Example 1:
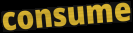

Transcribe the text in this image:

consume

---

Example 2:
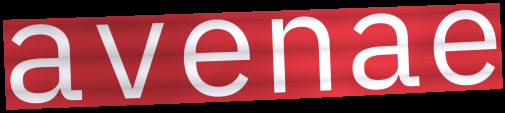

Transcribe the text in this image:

avenae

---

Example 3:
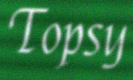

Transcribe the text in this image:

Topsy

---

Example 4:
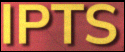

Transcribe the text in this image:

IPTS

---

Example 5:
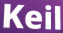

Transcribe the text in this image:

Keil